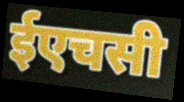
ईएचसी